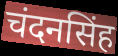
चंदनसिंह